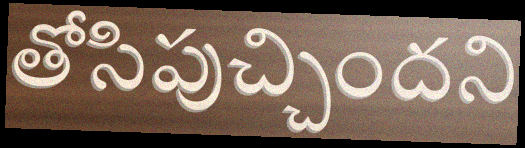
తోసిపుచ్చిందని